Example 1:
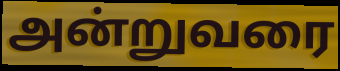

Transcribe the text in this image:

அன்றுவரை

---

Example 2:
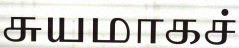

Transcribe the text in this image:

சுயமாகச்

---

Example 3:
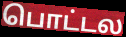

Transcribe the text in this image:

பொட்டல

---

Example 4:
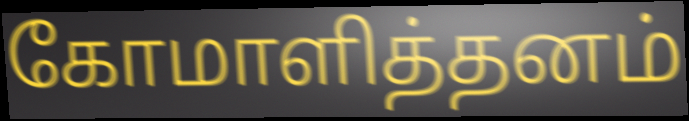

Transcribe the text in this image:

கோமாளித்தனம்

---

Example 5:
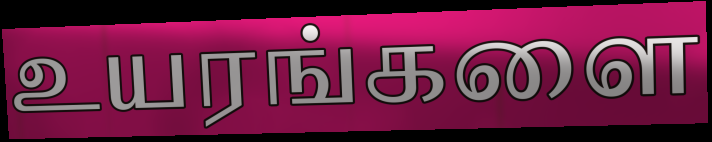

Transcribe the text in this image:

உயரங்களை